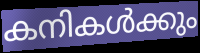
കനികൾക്കും